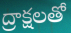
ద్రాక్షలతో